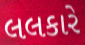
લલકારે